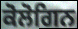
ਕੋਲੋਗਿਨ